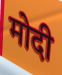
मोदी